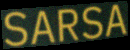
SARSA